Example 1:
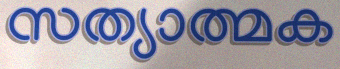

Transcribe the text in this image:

സത്യാത്മക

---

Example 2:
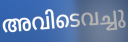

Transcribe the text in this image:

അവിടെവച്ചു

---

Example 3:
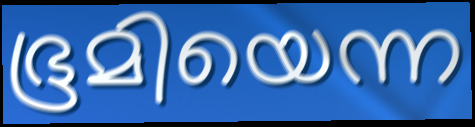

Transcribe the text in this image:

ഭൂമിയെന്ന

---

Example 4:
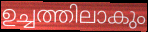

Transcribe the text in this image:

ഉച്ചത്തിലാകും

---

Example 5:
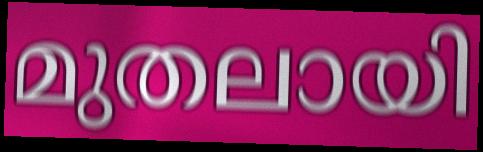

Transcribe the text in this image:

മുതലായി